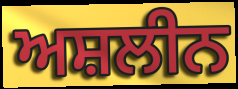
ਅਸ਼ਲੀਨ